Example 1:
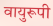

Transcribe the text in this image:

वायुरूपी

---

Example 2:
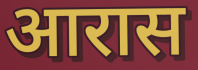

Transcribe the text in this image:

आरास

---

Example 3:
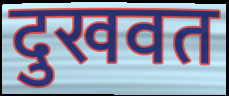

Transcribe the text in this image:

दुखवत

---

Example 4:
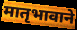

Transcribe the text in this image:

मातृभावाने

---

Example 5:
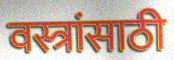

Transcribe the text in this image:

वस्त्रांसाठी